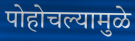
पोहोचल्यामुळे